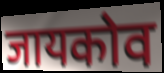
जायकोव